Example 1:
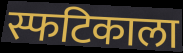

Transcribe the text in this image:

स्फटिकाला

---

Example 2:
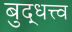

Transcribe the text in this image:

बुद्धत्त्व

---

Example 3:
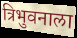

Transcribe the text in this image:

त्रिभुवनाला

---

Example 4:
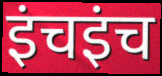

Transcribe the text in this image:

इंचइंच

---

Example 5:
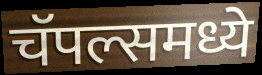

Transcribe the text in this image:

चॅपल्समध्ये